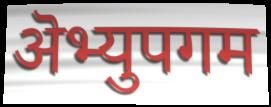
ऄभ्युपगम